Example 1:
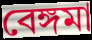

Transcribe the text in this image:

বেঙ্গমা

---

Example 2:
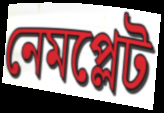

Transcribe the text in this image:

নেমপ্লেট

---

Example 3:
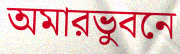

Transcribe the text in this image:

অমারভুবনে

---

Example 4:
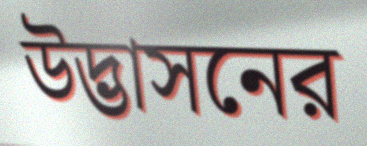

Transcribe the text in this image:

উদ্ভাসনের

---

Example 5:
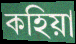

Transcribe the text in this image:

কহিয়া